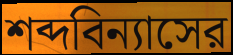
শব্দবিন্যাসের